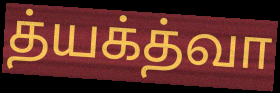
த்யக்த்வா